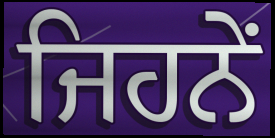
ਜਿਹਨੇਂ